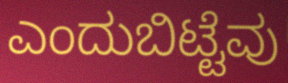
ಎಂದುಬಿಟ್ಟೆವು